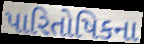
પારિતોષિકના